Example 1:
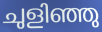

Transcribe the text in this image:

ചുളിഞ്ഞു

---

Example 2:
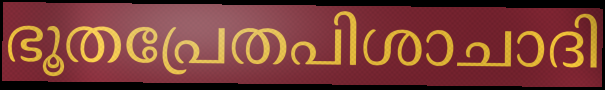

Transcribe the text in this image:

ഭൂതപ്രേതപിശാചാദി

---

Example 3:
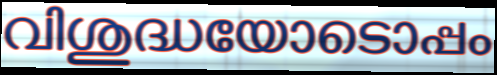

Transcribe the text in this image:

വിശുദ്ധയോടൊപ്പം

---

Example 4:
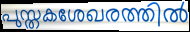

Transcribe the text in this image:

പുസ്തകശേഖരത്തിൽ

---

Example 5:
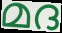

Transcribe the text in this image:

മദ